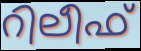
റിലീഫ്